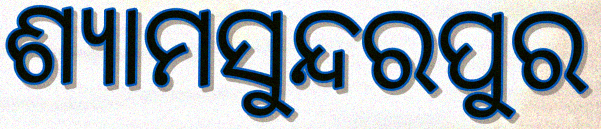
ଶ୍ୟାମସୁନ୍ଦରପୁର